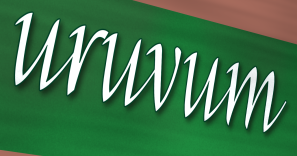
uruvum